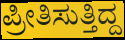
ಪ್ರೀತಿಸುತ್ತಿದ್ದ